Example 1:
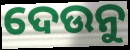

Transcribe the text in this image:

ଦେଉନୁ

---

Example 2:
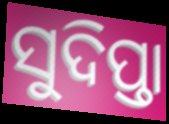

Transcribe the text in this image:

ସୁଦିପ୍ତା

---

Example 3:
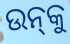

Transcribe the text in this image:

ଉନ୍‌କୁ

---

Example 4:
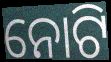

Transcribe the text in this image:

ନୋଟି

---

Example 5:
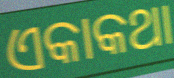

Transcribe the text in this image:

ଏକାକଥା